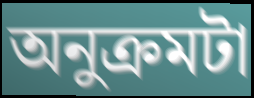
অনুক্রমটা